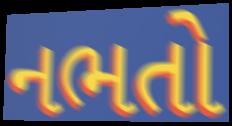
નભતો